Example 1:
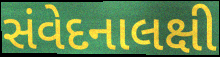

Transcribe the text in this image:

સંવેદનાલક્ષી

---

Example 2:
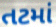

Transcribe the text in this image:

તટમાં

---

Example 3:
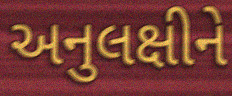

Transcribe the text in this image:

અનુલક્ષીને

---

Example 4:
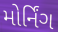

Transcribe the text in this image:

મોર્નિંગ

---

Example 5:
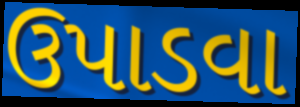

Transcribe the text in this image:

ઉપાડવા